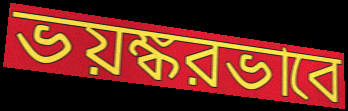
ভয়ঙ্করভাবে